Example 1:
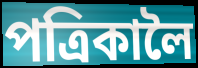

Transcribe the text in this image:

পত্ৰিকালৈ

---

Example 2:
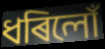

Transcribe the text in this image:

ধৰিলোঁ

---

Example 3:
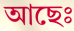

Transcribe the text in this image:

আছেঃ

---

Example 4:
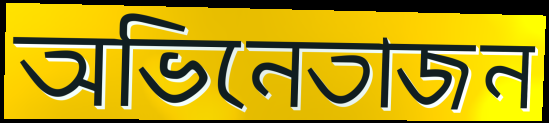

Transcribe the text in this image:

অভিনেতাজন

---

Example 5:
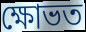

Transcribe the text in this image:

ক্ষোভত